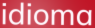
idioma